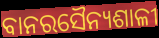
ବାନରସୈନ୍ୟଶାଳୀ